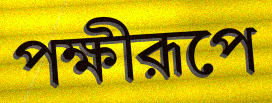
পক্ষীরূপে